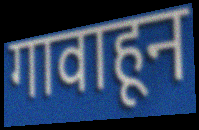
गावाहून